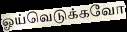
ஓய்வெடுக்கவோ